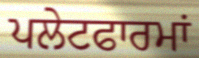
ਪਲੇਟਫਾਰਮਾਂ